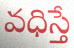
వధిస్తే